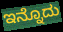
ಇನ್ನೊದು